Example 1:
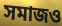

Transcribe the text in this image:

সমাজও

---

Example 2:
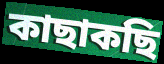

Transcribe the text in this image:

কাছাকছি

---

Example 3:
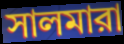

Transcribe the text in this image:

সালমারা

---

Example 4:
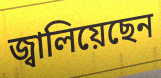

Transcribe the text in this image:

জ্বালিয়েছেন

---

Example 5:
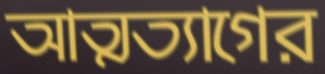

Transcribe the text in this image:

আত্মত্যাগের